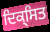
ਦਿਕ੍ਸਿਤ